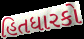
હિતધારકો